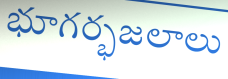
భూగర్భజలాలు